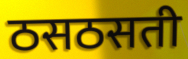
ठसठसती